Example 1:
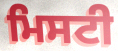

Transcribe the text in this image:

ਮਿਸਟੀ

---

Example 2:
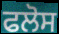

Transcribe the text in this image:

ਫਲੋਸ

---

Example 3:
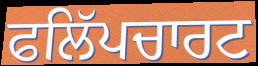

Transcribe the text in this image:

ਫਲਿੱਪਚਾਰਟ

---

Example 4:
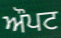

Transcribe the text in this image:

ਔਪਟ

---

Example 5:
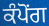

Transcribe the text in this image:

ਕੰਪੋਂਗ